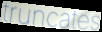
truncates